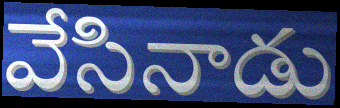
వేసినాడు